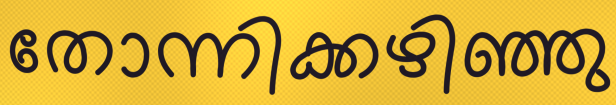
തോന്നിക്കഴിഞ്ഞു